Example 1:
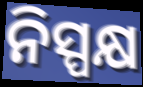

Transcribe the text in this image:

ନିସ୍ପକ୍ଷ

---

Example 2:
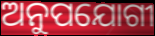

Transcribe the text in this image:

ଅନୁପଯୋଗୀ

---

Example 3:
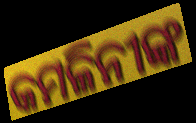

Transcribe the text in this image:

କମଳିନୀଙ୍କ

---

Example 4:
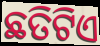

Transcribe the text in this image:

ଛତିଟିଏ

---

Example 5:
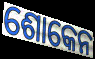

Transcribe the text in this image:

ଶୋକେନ